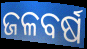
ଜଳବର୍ଷ